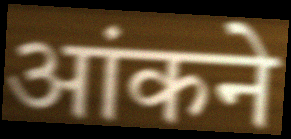
आंकने